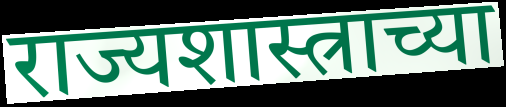
राज्यशास्त्राच्या